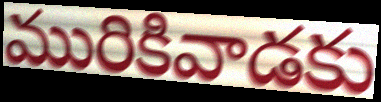
మురికివాడకు